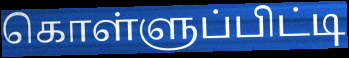
கொள்ளுப்பிட்டி